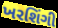
ખરશિંગી